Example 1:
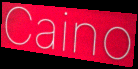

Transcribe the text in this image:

Caino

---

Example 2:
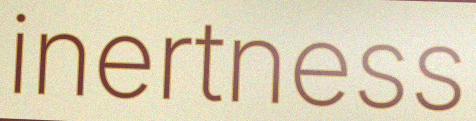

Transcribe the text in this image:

inertness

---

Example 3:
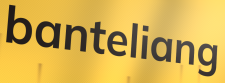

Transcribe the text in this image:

banteliang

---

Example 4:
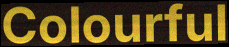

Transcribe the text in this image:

Colourful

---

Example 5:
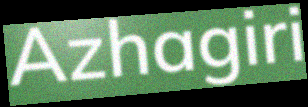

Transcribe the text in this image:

Azhagiri